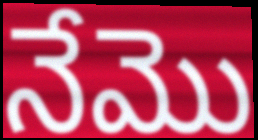
నేమొ